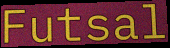
Futsal